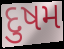
દુષમ